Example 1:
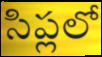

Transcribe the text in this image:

సిప్లలో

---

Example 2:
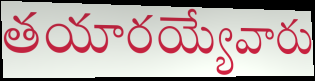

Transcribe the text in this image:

తయారయ్యేవారు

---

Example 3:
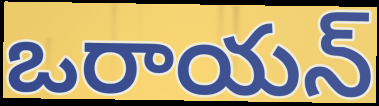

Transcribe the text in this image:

ఒరాయన్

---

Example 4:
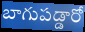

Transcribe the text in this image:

బాగుపడ్డారో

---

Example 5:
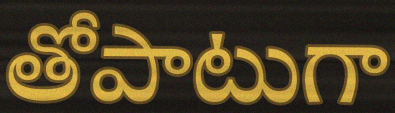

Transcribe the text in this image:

తోపాటుగా